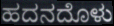
ಹದನದೊಳು